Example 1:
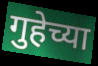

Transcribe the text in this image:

गुहेच्या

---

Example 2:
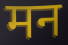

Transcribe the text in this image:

मन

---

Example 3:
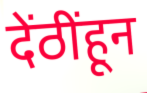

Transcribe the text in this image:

देंठींहून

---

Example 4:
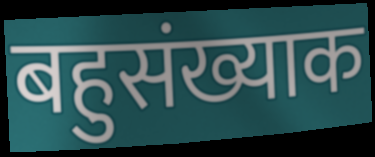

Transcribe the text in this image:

बहुसंख्याक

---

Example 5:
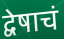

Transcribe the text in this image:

द्वेषाचं